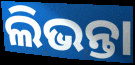
ଲିଭନ୍ତା